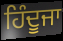
ਹਿੰਦੂਜਾ